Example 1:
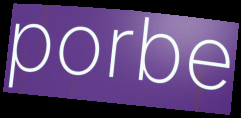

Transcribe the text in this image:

porbe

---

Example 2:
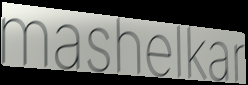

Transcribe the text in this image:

mashelkar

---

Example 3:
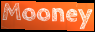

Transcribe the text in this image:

Mooney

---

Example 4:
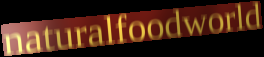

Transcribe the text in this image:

naturalfoodworld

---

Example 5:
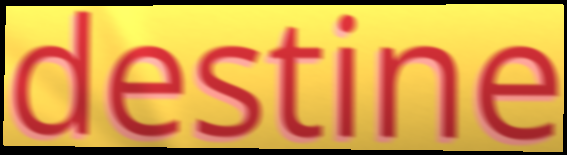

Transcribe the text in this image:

destine